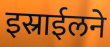
इस्राईलने